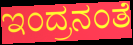
ಇಂದ್ರನಂತೆ